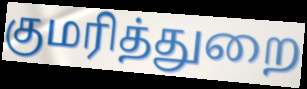
குமரித்துறை